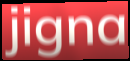
jigna